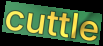
cuttle